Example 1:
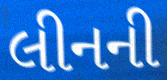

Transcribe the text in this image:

લીનની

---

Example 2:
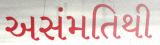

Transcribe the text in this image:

અસંમતિથી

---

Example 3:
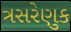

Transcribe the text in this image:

ત્રસરેણુક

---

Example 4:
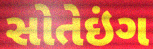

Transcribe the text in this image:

સોતેઇંગ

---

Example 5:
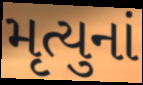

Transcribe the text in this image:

મૃત્યુનાં